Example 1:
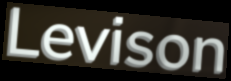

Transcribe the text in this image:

Levison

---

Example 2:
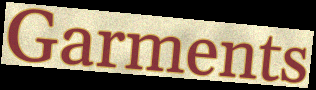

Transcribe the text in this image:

Garments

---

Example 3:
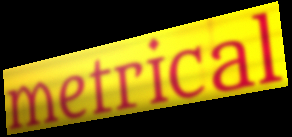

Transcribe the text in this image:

metrical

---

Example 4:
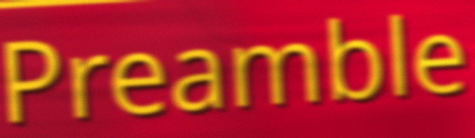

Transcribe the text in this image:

Preamble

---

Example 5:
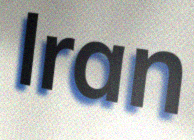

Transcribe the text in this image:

Iran